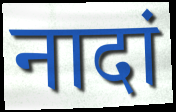
नादां